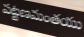
పట్టణమంతయు